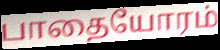
பாதையோரம்